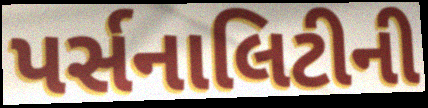
પર્સનાલિટીની